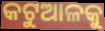
କଟୁଆଳକୁ